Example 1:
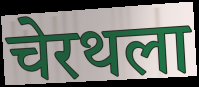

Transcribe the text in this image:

चेरथला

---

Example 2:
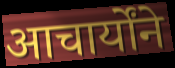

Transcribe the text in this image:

आचार्योंने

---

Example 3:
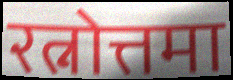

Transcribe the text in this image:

रत्नोत्तमा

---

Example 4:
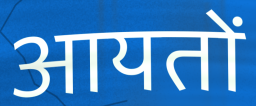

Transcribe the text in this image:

आयतों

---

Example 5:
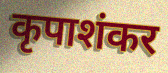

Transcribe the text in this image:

कृपाशंकर